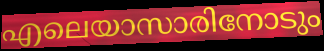
എലെയാസാരിനോടും